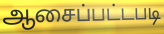
ஆசைப்பட்டபடி